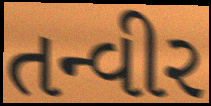
તન્વીર